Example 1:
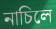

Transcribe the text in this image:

নাচিলে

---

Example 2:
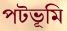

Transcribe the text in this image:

পটভূমি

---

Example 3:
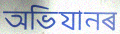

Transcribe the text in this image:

অভিযানৰ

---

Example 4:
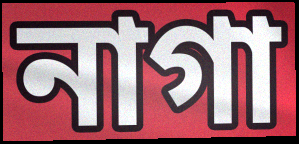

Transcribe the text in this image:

নাগা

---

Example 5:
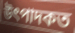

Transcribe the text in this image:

উৎপাদকত